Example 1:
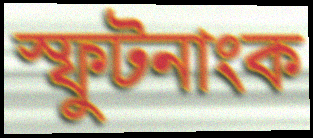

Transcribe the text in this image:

স্ফুটনাংক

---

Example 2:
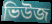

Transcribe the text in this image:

ভিউজ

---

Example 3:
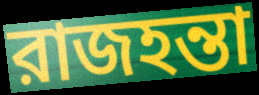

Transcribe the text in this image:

রাজহন্তা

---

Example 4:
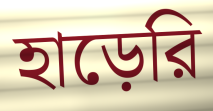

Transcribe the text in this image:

হাড়েরি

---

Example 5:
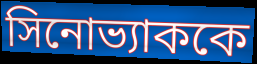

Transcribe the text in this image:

সিনোভ্যাককে